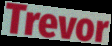
Trevor